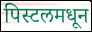
पिस्टलमधून